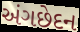
અંગછેદન